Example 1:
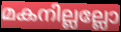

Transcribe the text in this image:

മകനില്ലല്ലോ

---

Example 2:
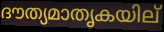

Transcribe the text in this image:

ദൗത്യമാതൃകയില്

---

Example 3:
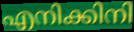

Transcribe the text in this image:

എനിക്കിനി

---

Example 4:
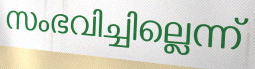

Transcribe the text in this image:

സംഭവിച്ചില്ലെന്ന്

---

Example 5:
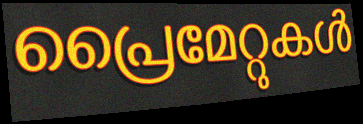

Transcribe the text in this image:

പ്രൈമേറ്റുകൾ